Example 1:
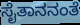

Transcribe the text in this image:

ಸೈತಾನನಂತೆ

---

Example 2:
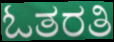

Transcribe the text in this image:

ಓತರತಿ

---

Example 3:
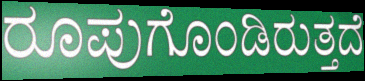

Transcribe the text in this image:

ರೂಪುಗೊಂಡಿರುತ್ತದೆ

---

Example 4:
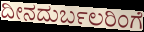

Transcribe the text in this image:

ದೀನದುರ್ಬಲರಿಂಗೆ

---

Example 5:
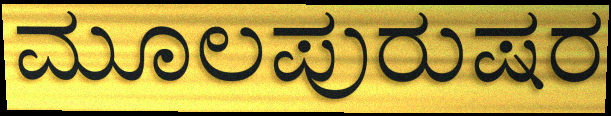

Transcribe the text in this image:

ಮೂಲಪುರುಷರ